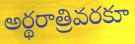
అర్థరాత్రివరకూ